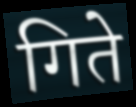
गिते